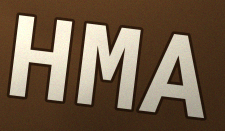
HMA